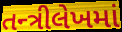
તન્ત્રીલેખમાં